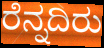
ರೆನ್ನದಿರು